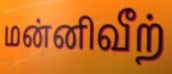
மன்னிவீற்